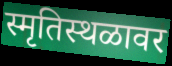
स्मृतिस्थळावर